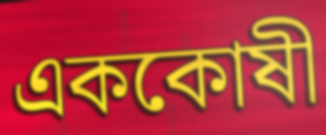
এককোষী